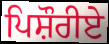
ਪਿਸ਼ੌਰੀਏ